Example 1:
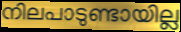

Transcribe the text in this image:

നിലപാടുണ്ടായില്ല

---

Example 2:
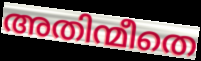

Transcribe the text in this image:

അതിന്മീതെ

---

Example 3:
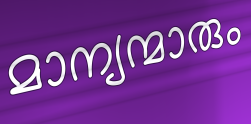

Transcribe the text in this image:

മാന്യന്മാരും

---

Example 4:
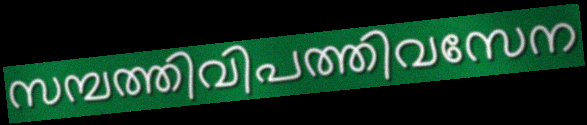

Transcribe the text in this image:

സമ്പത്തിവിപത്തിവസേന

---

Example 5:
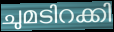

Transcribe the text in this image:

ചുമടിറക്കി